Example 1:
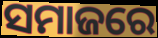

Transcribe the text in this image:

ସମାଜରେ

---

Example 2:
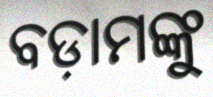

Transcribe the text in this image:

ବଡ଼ାମଙ୍କୁ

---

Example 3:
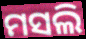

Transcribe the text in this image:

ମସଲି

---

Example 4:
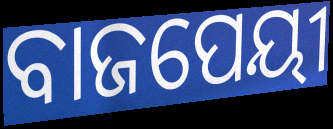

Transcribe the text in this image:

ବାଜପେୟୀ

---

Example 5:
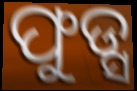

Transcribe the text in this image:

ଫୁଡ୍ସ